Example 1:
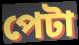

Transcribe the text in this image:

পেটা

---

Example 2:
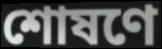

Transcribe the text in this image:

শোষণে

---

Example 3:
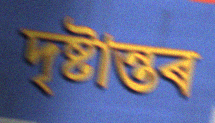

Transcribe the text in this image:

দৃষ্টান্তৰ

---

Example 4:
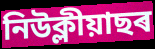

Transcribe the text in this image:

নিউক্লীয়াছৰ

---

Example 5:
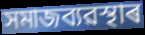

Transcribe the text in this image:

সমাজব্যৱস্থাৰ